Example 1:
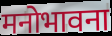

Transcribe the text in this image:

मनोभावना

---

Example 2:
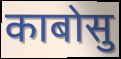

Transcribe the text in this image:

काबोसु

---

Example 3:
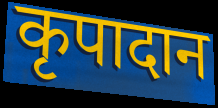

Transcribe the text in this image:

कृपादान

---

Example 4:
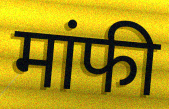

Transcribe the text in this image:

मांफी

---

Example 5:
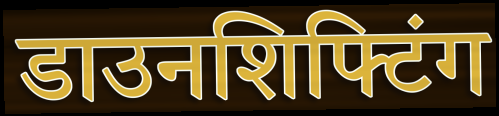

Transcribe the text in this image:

डाउनशिफ्टिंग